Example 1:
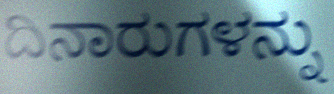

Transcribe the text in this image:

ದಿನಾರುಗಳನ್ನು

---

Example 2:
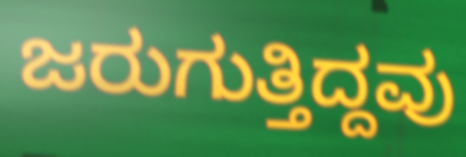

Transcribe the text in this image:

ಜರುಗುತ್ತಿದ್ದವು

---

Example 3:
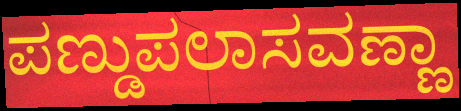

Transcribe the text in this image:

ಪಣ್ಡುಪಲಾಸವಣ್ಣಾ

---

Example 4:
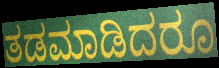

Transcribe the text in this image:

ತಡಮಾಡಿದರೂ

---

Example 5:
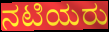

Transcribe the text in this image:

ನಟಿಯರು